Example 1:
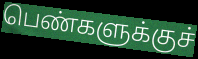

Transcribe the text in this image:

பெண்களுக்குச்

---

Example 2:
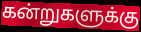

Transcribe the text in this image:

கன்றுகளுக்கு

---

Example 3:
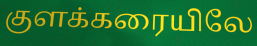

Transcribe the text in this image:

குளக்கரையிலே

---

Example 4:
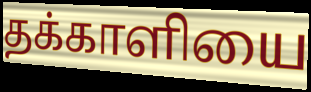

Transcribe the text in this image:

தக்காளியை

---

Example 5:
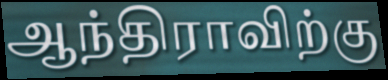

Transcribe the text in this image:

ஆந்திராவிற்கு